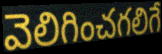
వెలిగించగలిగే